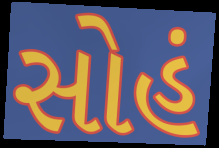
સોહં